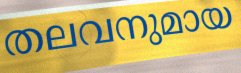
തലവനുമായ